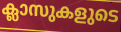
ക്ലാസുകളുടെ